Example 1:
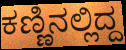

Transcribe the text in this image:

ಕಣ್ಣಿನಲ್ಲಿದ್ದ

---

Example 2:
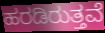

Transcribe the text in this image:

ಹರಡಿರುತ್ತವೆ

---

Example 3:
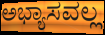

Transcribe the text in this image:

ಅಭ್ಯಾಸವಲ್ಲ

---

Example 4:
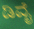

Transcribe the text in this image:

ಡಿವೈ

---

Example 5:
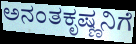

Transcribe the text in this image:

ಅನಂತಕೃಷ್ಣನಿಗೆ